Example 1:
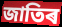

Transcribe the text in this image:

জাতিৰ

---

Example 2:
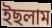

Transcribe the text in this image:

ইছলাম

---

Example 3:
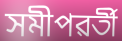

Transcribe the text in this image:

সমীপৱৰ্তী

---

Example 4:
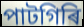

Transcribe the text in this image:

পাটগিৰি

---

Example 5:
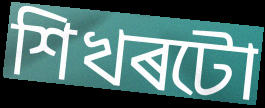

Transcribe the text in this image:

শিখৰটো